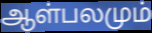
ஆள்பலமும்